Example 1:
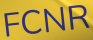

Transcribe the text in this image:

FCNR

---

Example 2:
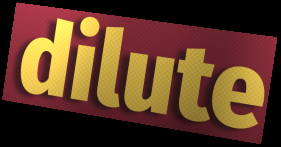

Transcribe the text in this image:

dilute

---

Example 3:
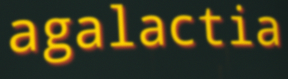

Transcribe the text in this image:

agalactia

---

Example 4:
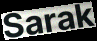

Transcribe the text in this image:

Sarak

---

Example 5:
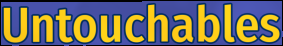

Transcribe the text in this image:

Untouchables